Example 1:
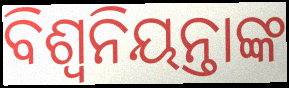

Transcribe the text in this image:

ବିଶ୍ବନିୟନ୍ତାଙ୍କ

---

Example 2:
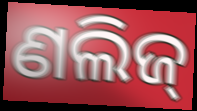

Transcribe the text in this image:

ଣଲିଜ୍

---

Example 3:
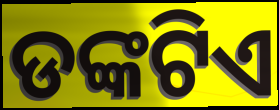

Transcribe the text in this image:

ଡଙ୍କଟିଏ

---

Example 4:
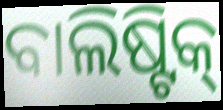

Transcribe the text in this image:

ବାଲିଷ୍ଟିକ୍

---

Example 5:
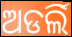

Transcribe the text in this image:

ଅଡର୍ଲି